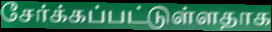
சேர்க்கப்பட்டுள்ளதாக